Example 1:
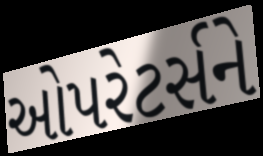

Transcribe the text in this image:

ઓપરેટર્સને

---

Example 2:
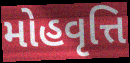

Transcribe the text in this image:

મોહવૃત્તિ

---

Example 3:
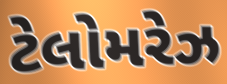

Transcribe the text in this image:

ટેલોમરેઝ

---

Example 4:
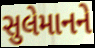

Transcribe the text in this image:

સુલેમાનને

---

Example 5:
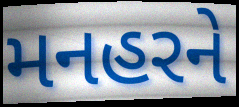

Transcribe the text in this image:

મનહરને